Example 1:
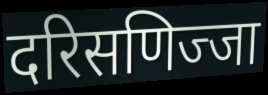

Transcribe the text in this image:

दरिसणिज्जा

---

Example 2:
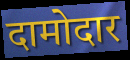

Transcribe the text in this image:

दामोदार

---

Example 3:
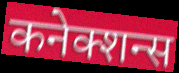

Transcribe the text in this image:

कनेक्शन्स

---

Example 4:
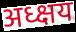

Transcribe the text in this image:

अध्क्षय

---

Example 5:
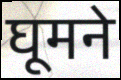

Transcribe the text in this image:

घूमने